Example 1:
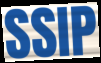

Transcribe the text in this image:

SSIP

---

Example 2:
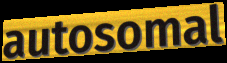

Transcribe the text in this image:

autosomal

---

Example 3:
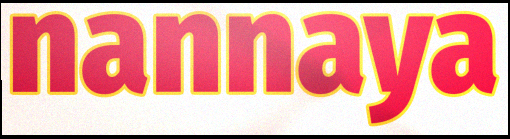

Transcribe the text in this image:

nannaya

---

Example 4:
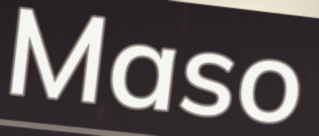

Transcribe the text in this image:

Maso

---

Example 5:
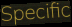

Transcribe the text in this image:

Specific